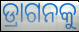
ଡ୍ରାଗନକୁ